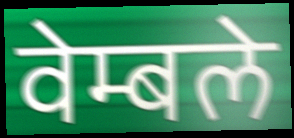
वेम्बले